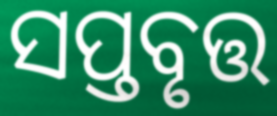
ସପ୍ତବୃତ୍ତ